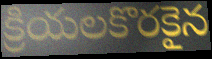
క్రియలకొరకైన